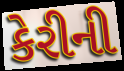
કેરીની